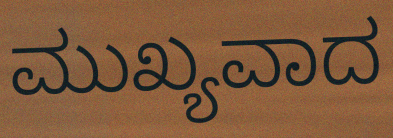
ಮುಖ್ಯವಾದ